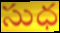
సుధ